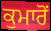
ਕੁਮਾਰੋਂ